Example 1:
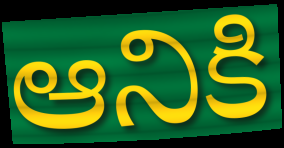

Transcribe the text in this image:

ఆనికి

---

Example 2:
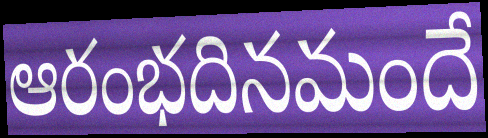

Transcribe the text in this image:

ఆరంభదినమందే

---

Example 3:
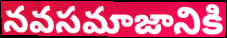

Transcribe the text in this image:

నవసమాజానికి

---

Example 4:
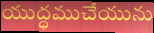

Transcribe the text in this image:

యుద్ధముచేయును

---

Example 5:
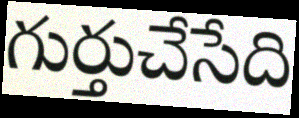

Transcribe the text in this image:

గుర్తుచేసేది